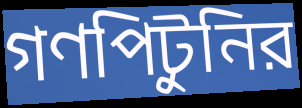
গণপিটুনির